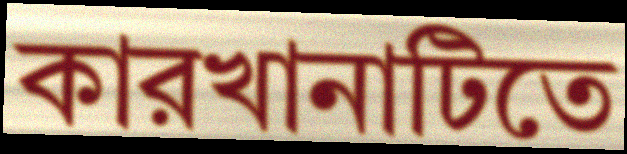
কারখানাটিতে